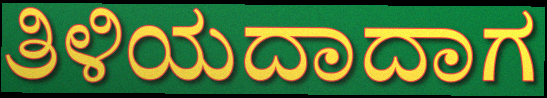
ತಿಳಿಯದಾದಾಗ